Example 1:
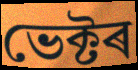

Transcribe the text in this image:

ভেক্টৰ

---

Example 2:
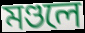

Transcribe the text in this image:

মণ্ডলে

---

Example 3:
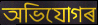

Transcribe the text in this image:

অভিযোগৰ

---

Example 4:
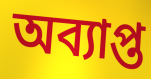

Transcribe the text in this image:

অব্যাপ্ত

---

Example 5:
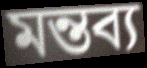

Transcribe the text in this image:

মন্তব্য